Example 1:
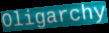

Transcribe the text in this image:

Oligarchy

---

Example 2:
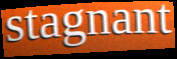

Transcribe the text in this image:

stagnant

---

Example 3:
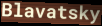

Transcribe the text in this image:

Blavatsky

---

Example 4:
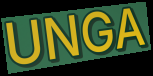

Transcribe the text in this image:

UNGA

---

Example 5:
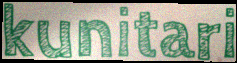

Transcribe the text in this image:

kunitari